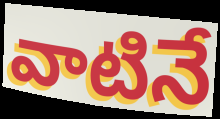
వాటినే